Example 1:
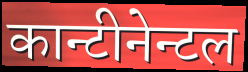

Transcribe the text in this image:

कान्टीनेन्टल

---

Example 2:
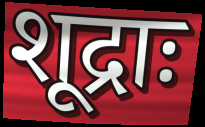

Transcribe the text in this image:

शूद्राः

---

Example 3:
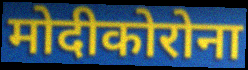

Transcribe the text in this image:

मोदीकोरोना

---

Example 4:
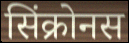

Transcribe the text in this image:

सिंक्रोनस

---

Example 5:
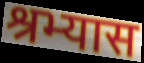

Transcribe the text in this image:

श्रभ्यास